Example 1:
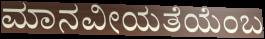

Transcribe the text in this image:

ಮಾನವೀಯತೆಯೆಂಬ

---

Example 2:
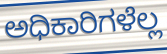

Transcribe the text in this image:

ಅಧಿಕಾರಿಗಳೆಲ್ಲ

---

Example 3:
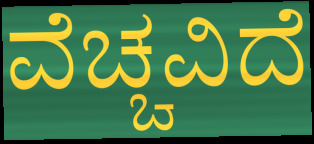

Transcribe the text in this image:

ವೆಚ್ಚವಿದೆ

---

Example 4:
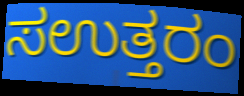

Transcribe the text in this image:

ಸಉತ್ತರಂ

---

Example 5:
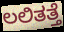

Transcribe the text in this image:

ಲಲಿತತ್ತೆ